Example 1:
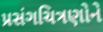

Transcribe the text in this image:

પ્રસંગચિત્રણોને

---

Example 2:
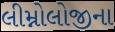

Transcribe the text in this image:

લીમ્નોલોજીના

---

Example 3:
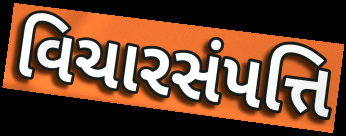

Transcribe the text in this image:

વિચારસંપત્તિ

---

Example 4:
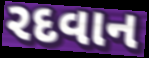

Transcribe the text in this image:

રદવાન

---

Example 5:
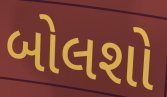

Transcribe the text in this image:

બોલશો